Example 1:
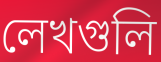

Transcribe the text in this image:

লেখগুলি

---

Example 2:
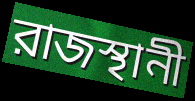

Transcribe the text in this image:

রাজস্থানী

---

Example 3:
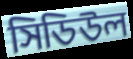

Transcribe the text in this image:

সিডিউল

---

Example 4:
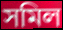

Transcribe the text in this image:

সমিল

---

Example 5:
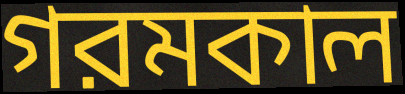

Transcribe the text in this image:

গরমকাল